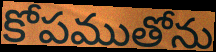
కోపముతోను